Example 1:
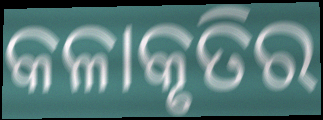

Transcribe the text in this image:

କଳାକୃତିର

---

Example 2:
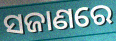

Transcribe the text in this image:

ସଜାଣରେ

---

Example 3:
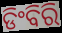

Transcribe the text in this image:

ଡିଂବିରି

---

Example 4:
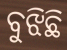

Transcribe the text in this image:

ବୁଝିଛି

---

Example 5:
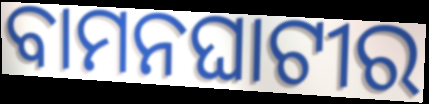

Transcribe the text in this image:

ବାମନଘାଟୀର